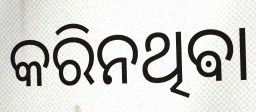
କରିନଥିଵା